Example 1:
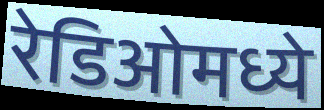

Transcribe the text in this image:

रेडिओमध्ये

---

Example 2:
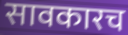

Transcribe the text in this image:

सावकारच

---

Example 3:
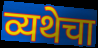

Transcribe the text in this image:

व्यथेचा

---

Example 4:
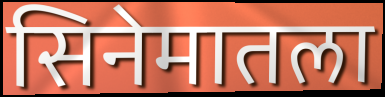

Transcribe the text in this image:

सिनेमातला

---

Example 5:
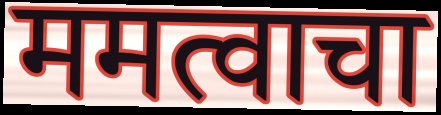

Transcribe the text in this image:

ममत्वाचा